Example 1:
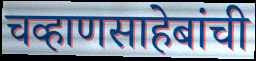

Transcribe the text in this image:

चव्हाणसाहेबांची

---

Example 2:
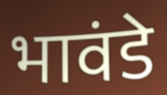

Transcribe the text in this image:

भावंडे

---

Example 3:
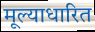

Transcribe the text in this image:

मूल्याधारित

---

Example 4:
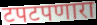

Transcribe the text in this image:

टपटपणारा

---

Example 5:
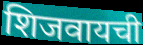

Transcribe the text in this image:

शिजवायची